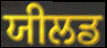
ਯੀਲਡ